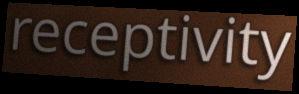
receptivity